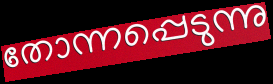
തോന്നപ്പെടുന്നു